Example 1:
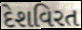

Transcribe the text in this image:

દેશવિરત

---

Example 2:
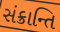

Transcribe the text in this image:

સંક્રાન્તિ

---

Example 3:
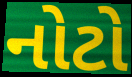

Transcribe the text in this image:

નોટો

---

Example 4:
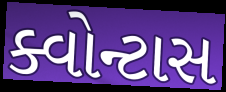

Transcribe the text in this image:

ક્વોન્ટાસ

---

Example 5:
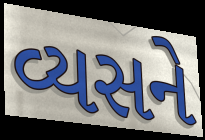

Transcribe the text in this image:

વ્યસને